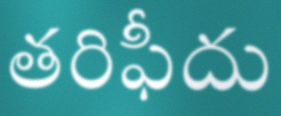
తరిఫీదు